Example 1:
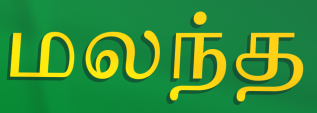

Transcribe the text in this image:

மலந்த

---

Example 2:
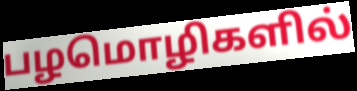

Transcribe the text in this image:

பழமொழிகளில்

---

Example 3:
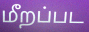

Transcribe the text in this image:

மீறப்பட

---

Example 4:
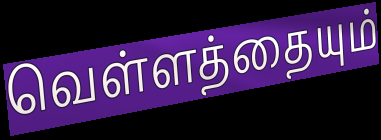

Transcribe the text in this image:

வெள்ளத்தையும்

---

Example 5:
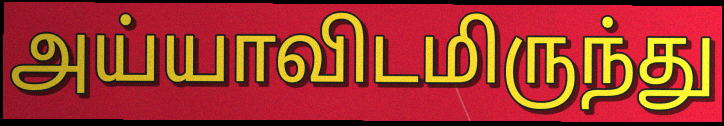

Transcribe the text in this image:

அய்யாவிடமிருந்து